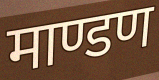
माण्डण